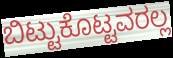
ಬಿಟ್ಟುಕೊಟ್ಟವರಲ್ಲ